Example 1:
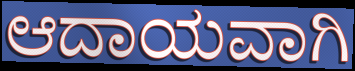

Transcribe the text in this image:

ಆದಾಯವಾಗಿ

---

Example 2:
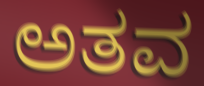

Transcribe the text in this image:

ಅತವ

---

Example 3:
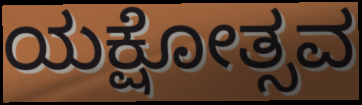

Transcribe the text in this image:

ಯಕ್ಷೋತ್ಸವ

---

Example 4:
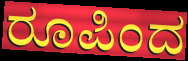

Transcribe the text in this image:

ರೂಪಿಂದ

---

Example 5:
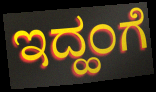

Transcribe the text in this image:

ಇದ್ಹಂಗೆ